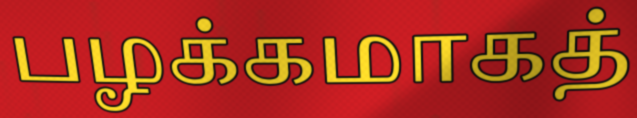
பழக்கமாகத்